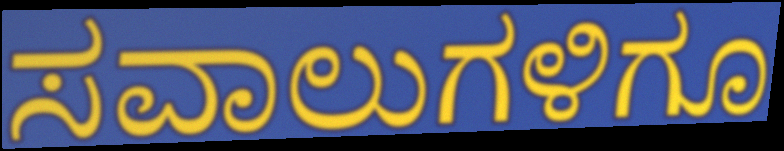
ಸವಾಲುಗಳಿಗೂ